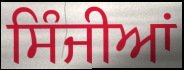
ਸਿੰਜੀਆਂ